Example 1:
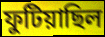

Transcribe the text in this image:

ফুটিয়াছিল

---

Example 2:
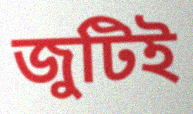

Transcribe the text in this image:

জুটিই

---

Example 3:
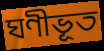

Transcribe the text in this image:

ঘণীভূত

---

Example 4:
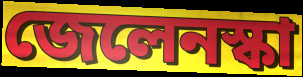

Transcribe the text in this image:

জেলেনস্কা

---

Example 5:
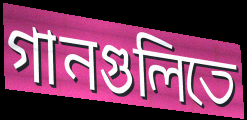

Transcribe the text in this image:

গানগুলিতে